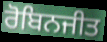
ਰੋਬਿਨਜੀਤ